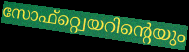
സോഫ്റ്റ്വെയറിന്റെയും